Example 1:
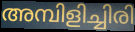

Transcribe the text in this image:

അമ്പിളിച്ചിരി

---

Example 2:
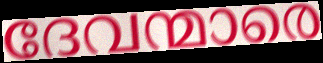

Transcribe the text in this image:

ദേവന്മാരെ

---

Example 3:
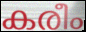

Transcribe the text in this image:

കരീം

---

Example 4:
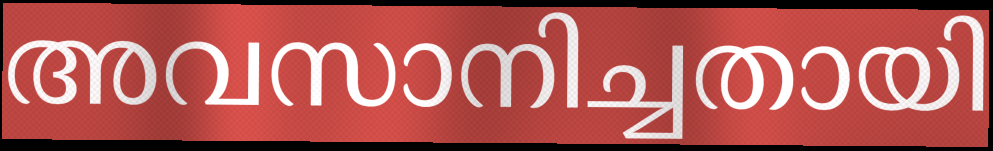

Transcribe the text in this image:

അവസാനിച്ചതായി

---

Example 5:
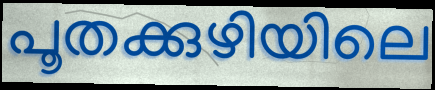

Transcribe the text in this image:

പൂതക്കുഴിയിലെ